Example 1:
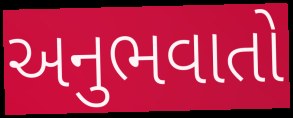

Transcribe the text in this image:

અનુભવાતો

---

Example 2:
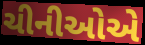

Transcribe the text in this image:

ચીનીઓએ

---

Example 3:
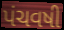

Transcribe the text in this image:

પંચવષી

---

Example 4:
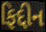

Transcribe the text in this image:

ફિદ્દીન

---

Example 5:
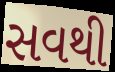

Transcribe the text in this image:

સવથી